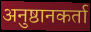
अनुष्ठानकर्ता